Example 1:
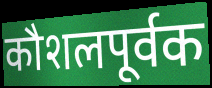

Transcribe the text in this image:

कौशलपूर्वक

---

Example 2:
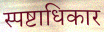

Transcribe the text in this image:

स्पष्टाधिकार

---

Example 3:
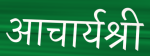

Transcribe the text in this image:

आचार्यश्री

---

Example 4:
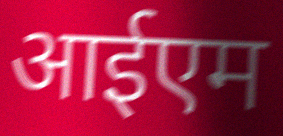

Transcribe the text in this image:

आईएम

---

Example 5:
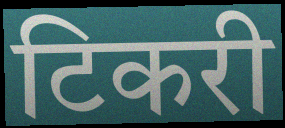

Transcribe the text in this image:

टिकरी